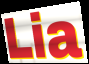
Lia